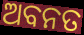
ଅବନତ